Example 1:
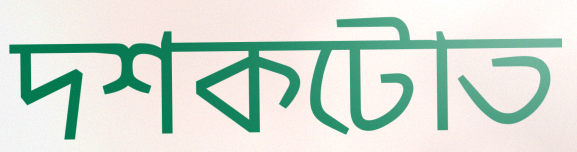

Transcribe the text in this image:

দশকটোত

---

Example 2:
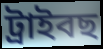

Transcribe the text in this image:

ট্ৰাইবছ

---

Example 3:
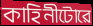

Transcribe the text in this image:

কাহিনীটোৱে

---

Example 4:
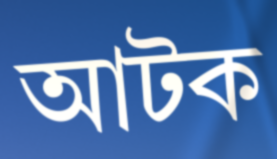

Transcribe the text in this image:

আটক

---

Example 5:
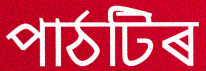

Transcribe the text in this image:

পাঠটিৰ